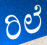
ರಿಲೆ